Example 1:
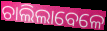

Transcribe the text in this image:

ଚାଲିଲାବେଳେ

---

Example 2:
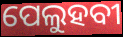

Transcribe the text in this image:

ପେଲୁହବୀ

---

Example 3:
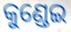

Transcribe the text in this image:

କୁଣ୍ଡେଇ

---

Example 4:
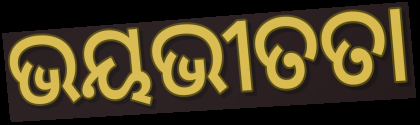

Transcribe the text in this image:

ଭୟଭୀତତା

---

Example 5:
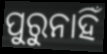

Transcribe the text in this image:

ପୁରୁନାହିଁ